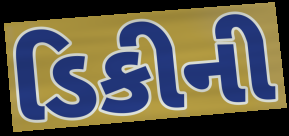
ડિકીની